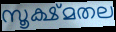
സൂക്ഷ്മതല